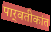
पार्वतीकांत